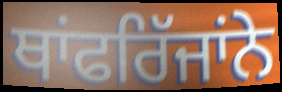
ਥਾਂਫਰਿੱਜਾਂਨੇ